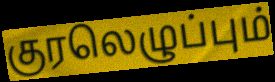
குரலெழுப்பும்